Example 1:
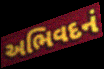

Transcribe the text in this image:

અભિવદનં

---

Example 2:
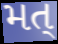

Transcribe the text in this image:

મત્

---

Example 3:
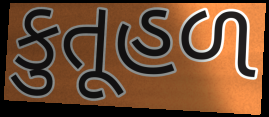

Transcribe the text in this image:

કુતૂહળ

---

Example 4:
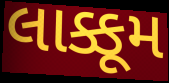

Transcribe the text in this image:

લાક્કૂમ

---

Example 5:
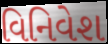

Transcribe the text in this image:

વિનિવેશ